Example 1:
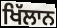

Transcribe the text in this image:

ਖਿੱਲਾਨ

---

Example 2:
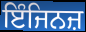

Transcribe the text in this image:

ਇੰਜਿਨਜ਼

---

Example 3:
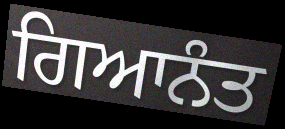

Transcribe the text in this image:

ਗਿਆਨੰਤ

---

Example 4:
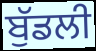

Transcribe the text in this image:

ਬੁੱਡਲੀ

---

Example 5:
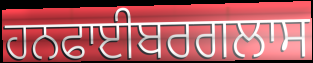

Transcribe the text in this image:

ਹਨਫਾਈਬਰਗਲਾਸ